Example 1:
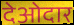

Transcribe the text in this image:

देओदार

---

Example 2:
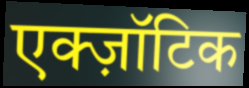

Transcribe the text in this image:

एक्ज़ॉटिक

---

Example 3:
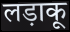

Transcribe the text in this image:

लड़ाकू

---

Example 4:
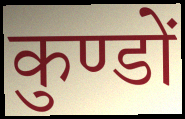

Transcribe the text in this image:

कुण्डों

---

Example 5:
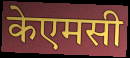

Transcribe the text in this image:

केएमसी